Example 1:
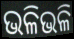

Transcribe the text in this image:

ଭଳିଭଳି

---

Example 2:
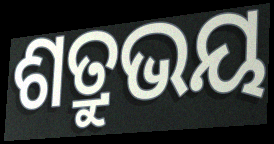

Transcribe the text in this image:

ଶତ୍ରୁଭୟ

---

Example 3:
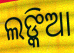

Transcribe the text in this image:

ଲଙ୍କିଆ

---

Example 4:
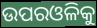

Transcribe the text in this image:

ଉପରଓଳିକୁ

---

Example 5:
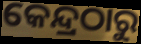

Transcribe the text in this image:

କେନ୍ଦ୍ରଠାରୁ